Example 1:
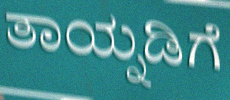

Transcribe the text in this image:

ತಾಯ್ನಡಿಗೆ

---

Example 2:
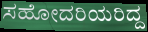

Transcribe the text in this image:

ಸಹೋದರಿಯರಿದ್ದ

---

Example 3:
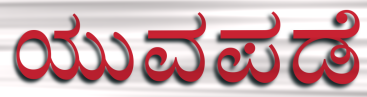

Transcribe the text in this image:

ಯುವಪಡೆ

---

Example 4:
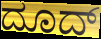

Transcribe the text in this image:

ದೂದ್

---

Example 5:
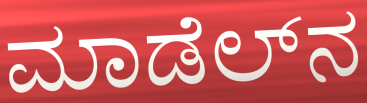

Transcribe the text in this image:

ಮಾಡೆಲ್‌ನ